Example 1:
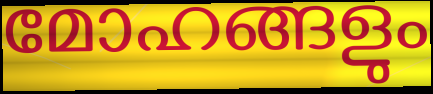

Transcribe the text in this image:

മോഹങ്ങളും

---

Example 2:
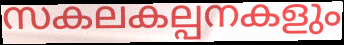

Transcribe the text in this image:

സകലകല്പനകളും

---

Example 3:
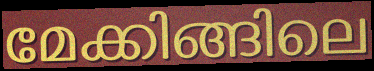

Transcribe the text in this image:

മേക്കിങ്ങിലെ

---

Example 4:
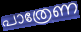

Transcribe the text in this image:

പാത്രേണ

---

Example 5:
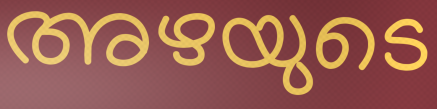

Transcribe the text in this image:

അഴയുടെ